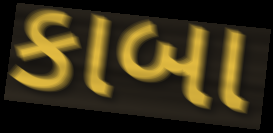
કાબા